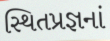
સ્થિતપ્રજ્ઞનાં